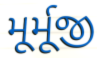
મૂર્મૂજી